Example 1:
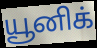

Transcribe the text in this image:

யூனிக்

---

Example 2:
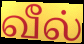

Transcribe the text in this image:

வீல்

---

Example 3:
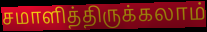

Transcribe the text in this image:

சமாளித்திருக்கலாம்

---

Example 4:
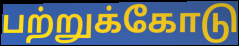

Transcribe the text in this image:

பற்றுக்கோடு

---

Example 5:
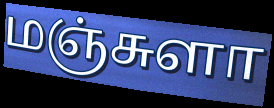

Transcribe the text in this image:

மஞ்சுளா